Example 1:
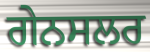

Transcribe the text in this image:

ਗੇਨਸਲਰ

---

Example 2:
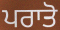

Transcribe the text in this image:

ਪਰਾਤੋ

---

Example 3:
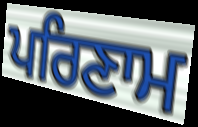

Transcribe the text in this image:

ਪਰਿਣਾਮ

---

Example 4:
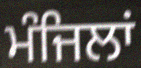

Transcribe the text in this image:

ਮੰਜਿਲਾਂ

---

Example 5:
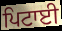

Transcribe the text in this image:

ਪਿਟਾਈ